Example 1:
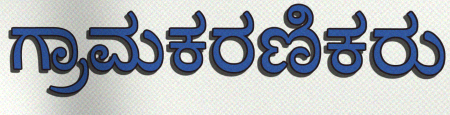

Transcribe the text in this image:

ಗ್ರಾಮಕರಣಿಕರು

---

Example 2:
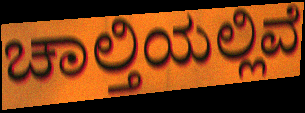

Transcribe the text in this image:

ಚಾಲ್ತಿಯಲ್ಲಿವೆ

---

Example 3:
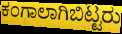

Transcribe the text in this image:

ಕಂಗಾಲಾಗಿಬಿಟ್ಟರು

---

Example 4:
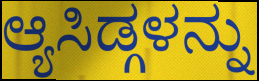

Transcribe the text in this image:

ಆ್ಯಸಿಡ್ಗಳನ್ನು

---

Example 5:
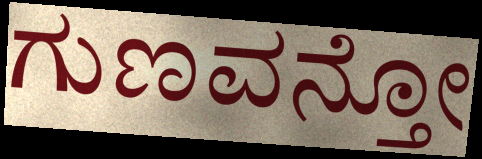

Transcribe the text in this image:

ಗುಣವನ್ತೋ